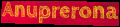
Anuprerona